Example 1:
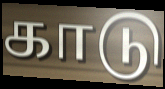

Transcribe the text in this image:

காடு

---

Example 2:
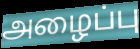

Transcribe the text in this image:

அழைப்பு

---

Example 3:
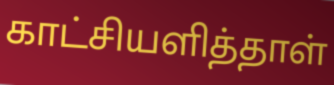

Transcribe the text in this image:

காட்சியளித்தாள்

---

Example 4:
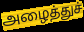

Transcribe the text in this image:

அழைத்துச்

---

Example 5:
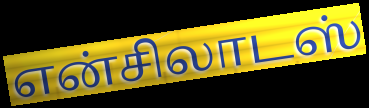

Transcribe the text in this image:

என்சிலாடஸ்